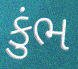
કુંભ